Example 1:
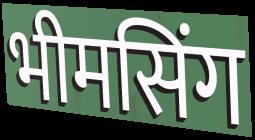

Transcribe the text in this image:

भीमसिंग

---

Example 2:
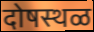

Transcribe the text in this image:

दोषस्थळ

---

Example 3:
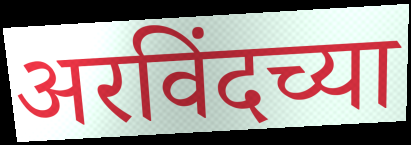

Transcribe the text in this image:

अरविंदच्या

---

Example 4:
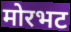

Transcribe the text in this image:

मोरभट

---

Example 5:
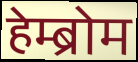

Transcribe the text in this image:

हेम्ब्रोम